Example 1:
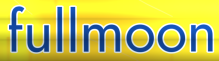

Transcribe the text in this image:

fullmoon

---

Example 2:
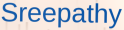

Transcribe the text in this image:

Sreepathy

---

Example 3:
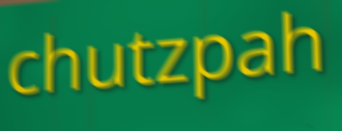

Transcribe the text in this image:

chutzpah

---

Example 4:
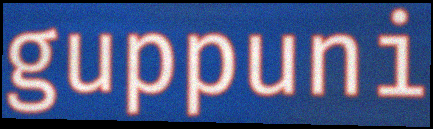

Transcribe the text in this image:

guppuni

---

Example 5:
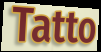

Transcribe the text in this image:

Tatto